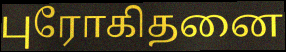
புரோகிதனை